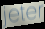
jeter